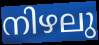
നിഴലു